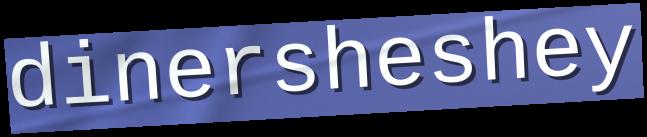
dinersheshey